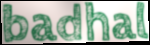
badhal